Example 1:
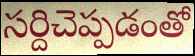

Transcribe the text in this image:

సర్దిచెప్పడంతో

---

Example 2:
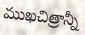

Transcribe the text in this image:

ముఖచిత్రాన్నీ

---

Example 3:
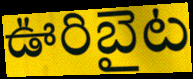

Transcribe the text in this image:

ఊరిబైట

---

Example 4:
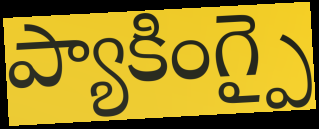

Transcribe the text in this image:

ప్యాకింగ్పై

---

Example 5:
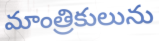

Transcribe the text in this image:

మాంత్రికులును